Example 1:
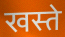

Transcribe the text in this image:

खस्ते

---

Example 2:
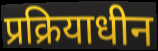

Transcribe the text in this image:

प्रक्रियाधीन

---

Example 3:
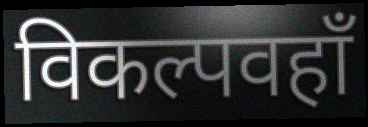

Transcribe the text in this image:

विकल्पवहाँ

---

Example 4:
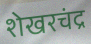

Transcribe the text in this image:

शेखरचंद्र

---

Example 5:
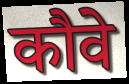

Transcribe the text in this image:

कौवे